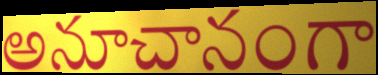
అనూచానంగా